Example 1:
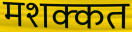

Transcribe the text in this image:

मशक्‍कत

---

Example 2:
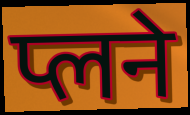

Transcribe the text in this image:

प्लने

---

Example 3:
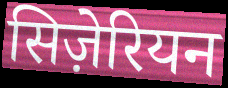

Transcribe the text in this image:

सिज़ेरियन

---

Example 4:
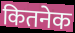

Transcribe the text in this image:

कितनेक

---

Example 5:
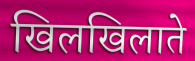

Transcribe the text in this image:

खिलखिलाते